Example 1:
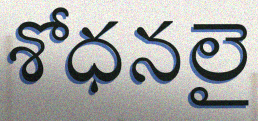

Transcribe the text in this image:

శోధనలై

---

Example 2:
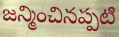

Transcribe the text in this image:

జన్మించినప్పటి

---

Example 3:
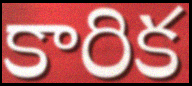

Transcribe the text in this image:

కారిక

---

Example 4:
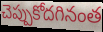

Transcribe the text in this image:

చెప్పుకోదగినంత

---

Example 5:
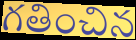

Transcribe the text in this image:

గతించిన